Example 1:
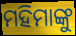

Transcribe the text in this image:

ମହିମାଙ୍କୁ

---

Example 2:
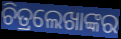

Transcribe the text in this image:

ଚିତ୍ରଲେଖାଙ୍କର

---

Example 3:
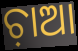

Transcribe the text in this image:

ଚ଼ାଆ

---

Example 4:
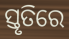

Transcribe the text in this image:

ସ୍ତୃତିରେ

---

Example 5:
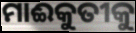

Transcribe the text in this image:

ମାଈକୁତୀକୁ